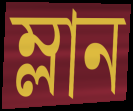
ম্লান